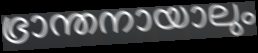
ഭ്രാന്തനായാലും